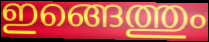
ഇങ്ങെത്തും